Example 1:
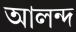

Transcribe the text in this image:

আলন্দ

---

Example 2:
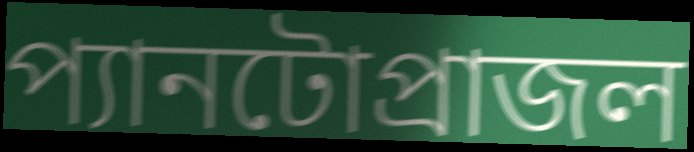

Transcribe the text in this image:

প্যানটোপ্রাজল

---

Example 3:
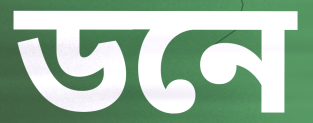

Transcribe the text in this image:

ডনে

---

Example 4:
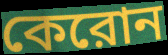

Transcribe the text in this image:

কেরোন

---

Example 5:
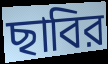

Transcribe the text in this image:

ছাবির